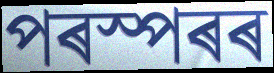
পৰস্পৰৰ